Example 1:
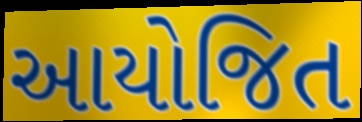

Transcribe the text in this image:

આયોજિત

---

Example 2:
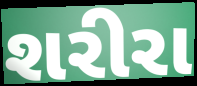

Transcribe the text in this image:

શરીરા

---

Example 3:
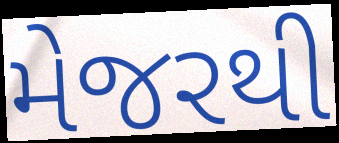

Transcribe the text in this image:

મેજરથી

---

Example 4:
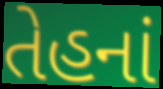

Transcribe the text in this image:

તેહનાં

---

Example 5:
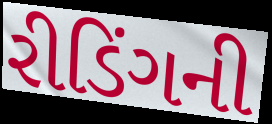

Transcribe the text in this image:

રીડિંગની